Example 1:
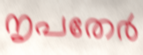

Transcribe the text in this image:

നൃപതേർ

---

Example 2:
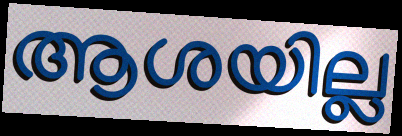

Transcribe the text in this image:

ആശയില്ല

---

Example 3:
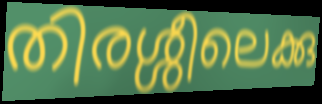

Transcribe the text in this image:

തിരശ്ശീലെക്കു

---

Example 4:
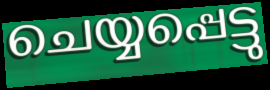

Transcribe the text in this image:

ചെയ്യപ്പെട്ടു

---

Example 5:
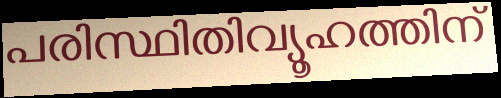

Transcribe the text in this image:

പരിസ്ഥിതിവ്യൂഹത്തിന്